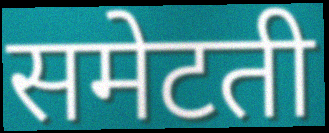
समेटती